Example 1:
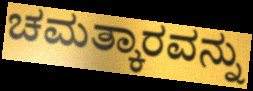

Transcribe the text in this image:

ಚಮತ್ಕಾರವನ್ನು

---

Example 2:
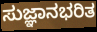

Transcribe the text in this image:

ಸುಜ್ಞಾನಭರಿತ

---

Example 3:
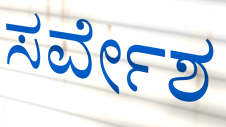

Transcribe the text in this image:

ಸರ್ವೇಶ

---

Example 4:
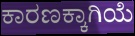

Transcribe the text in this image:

ಕಾರಣಕ್ಕಾಗಿಯೆ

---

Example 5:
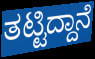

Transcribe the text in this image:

ತಟ್ಟಿದ್ದಾನೆ